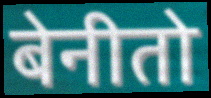
बेनीतो